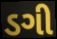
ડગી